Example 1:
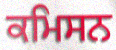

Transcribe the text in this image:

ਕਮਿਸਨ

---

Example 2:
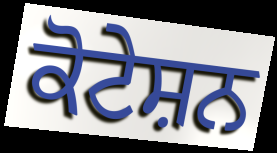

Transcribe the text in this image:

ਕੋਟੇਸ਼ਨ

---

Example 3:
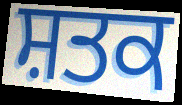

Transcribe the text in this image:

ਸ਼ਤਕ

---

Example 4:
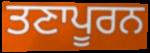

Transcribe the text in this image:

ਤਣਾਪੂਰਨ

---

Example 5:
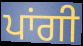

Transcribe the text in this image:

ਪਾਂਗੀ